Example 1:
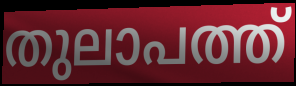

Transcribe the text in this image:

തുലാപത്ത്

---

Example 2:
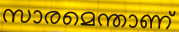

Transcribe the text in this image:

സാരമെന്താണ്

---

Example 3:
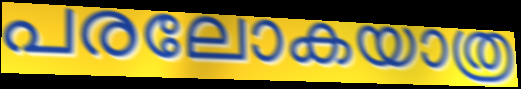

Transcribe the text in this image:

പരലോകയാത്ര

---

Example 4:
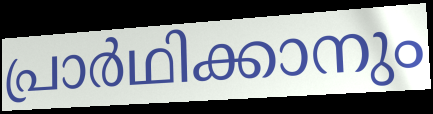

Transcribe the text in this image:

പ്രാർഥിക്കാനും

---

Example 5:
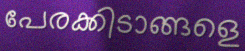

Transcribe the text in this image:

പേരക്കിടാങ്ങളെ